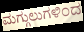
ಮಗ್ಗುಲುಗಳಿಂದ